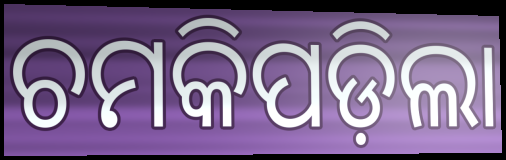
ଚମକିପଡ଼ିଲା